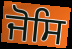
ਜੋਸਿ